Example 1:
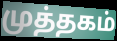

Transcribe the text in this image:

முத்தகம்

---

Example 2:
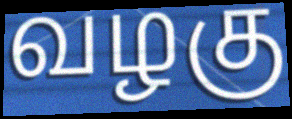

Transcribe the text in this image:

வழகு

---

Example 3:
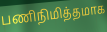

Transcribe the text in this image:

பணிநிமித்தமாக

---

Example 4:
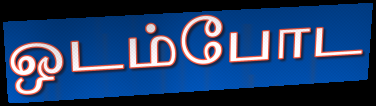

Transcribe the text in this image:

ஒடம்போட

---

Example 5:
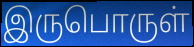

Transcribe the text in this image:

இருபொருள்